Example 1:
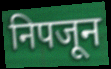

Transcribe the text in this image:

निपजून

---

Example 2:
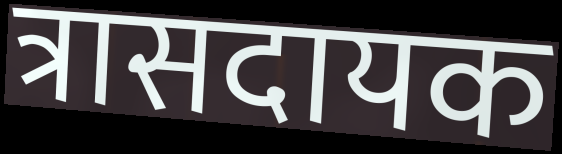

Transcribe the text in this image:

त्रासदायक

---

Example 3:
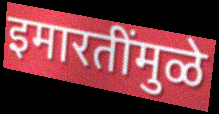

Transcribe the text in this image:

इमारतींमुळे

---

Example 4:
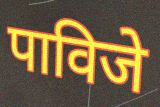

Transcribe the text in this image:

पाविजे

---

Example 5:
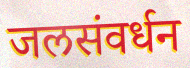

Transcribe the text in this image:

जलसंवर्धन